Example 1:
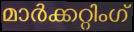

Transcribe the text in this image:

മാർക്കറ്റിംഗ്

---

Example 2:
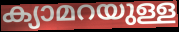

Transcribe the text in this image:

ക്യാമറയുള്ള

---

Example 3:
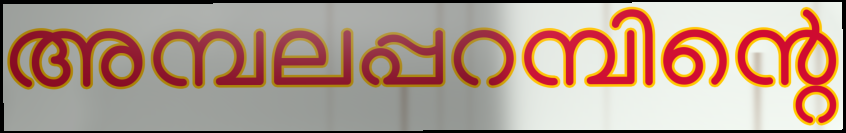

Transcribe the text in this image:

അമ്പലപ്പറമ്പിന്റെ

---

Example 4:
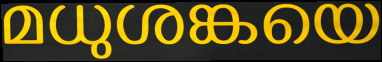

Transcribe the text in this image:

മധുശങ്കയെ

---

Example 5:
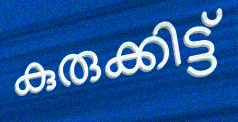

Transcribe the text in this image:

കുരുക്കിട്ട്